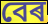
বেৰ